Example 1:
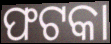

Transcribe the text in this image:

ଫଟକା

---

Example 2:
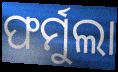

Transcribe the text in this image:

ଫର୍ମୁଲା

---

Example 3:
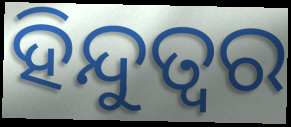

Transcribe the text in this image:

ହିନ୍ଦୁତ୍ବର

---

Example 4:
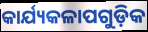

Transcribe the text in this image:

କାର୍ଯ୍ୟକଳାପଗୁଡ଼ିକ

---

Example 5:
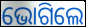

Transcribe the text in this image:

ଭୋଗିଲେ